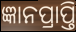
ଜ୍ଞାନପ୍ରାପ୍ତି